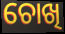
ଚୋଖି